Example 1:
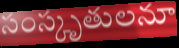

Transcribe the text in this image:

సంస్కృతులనూ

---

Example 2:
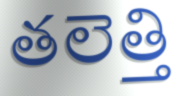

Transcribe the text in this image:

తలెత్తి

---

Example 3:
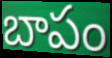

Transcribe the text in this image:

బాపం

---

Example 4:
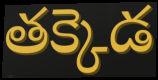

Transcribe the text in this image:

తక్కెడ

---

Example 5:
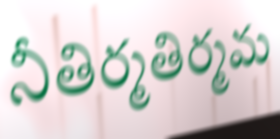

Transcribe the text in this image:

నీతిర్మతిర్మమ